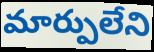
మార్పులేని